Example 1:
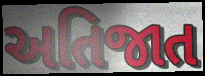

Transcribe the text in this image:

અતિજાત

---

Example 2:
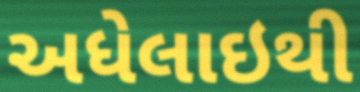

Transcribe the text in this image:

અધેલાઇથી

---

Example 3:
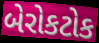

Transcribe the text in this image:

બેરોકટોક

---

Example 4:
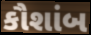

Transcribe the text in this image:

કૌશાંબ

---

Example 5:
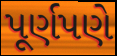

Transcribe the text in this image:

પૂર્ણપણે